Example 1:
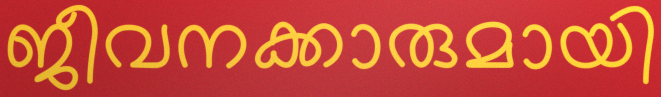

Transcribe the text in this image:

ജീവനക്കാരുമായി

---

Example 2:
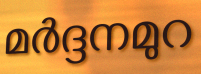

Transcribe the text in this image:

മർദ്ദനമുറ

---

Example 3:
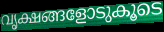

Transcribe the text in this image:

വൃക്ഷങ്ങളോടുകൂടെ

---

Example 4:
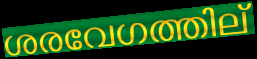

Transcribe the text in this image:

ശരവേഗത്തില്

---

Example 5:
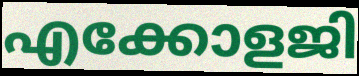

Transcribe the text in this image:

എക്കോളജി